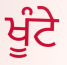
ਖੂੰਟੇ